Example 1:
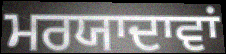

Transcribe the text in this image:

ਮਰਯਾਦਾਵਾਂ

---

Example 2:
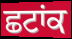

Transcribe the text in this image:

ਛਟਾਂਕ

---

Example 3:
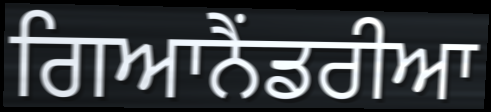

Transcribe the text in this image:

ਗਿਆਨੈਂਡਰੀਆ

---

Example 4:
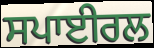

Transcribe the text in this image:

ਸਪਾਈਰਲ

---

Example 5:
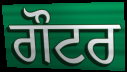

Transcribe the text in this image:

ਗੌਟਰ